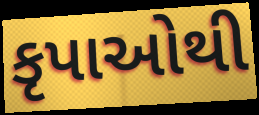
કૃપાઓથી